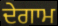
ਦੇਗਾਮ